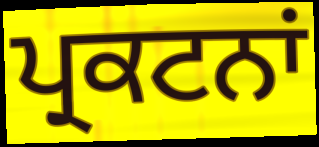
ਪ੍ਰਕਟਨਾਂ